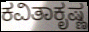
ಕವಿತಾಕೃಷ್ಣ